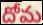
దోమ